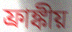
ফ্রাঙ্কীয়